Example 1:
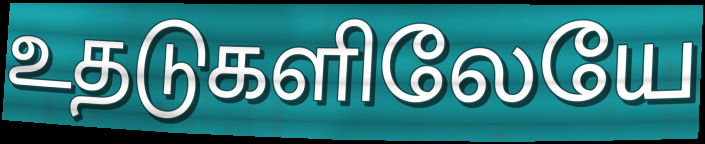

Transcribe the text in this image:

உதடுகளிலேயே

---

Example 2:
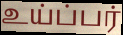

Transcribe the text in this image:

உய்ப்பர்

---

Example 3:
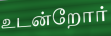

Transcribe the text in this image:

உடன்றோர்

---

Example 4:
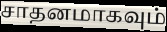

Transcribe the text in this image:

சாதனமாகவும்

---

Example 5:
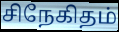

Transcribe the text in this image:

சிநேகிதம்